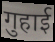
गुहाई